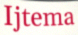
Ijtema